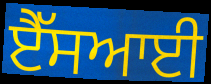
ਏੈੱਸਆਈ